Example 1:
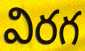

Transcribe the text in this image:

విరగ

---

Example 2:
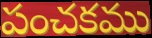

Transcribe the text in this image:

పంచకము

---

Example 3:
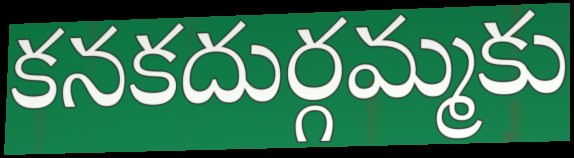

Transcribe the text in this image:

కనకదుర్గమ్మకు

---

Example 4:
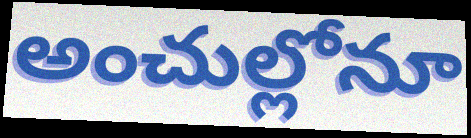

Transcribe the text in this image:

అంచుల్లోనూ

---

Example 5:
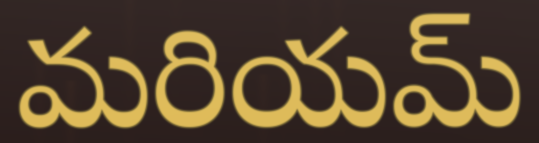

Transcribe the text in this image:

మరియమ్